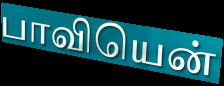
பாவியென்